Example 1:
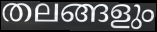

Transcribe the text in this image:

തലങ്ങളും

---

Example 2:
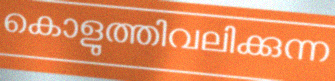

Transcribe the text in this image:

കൊളുത്തിവലിക്കുന്ന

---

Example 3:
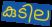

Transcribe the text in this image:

കുടില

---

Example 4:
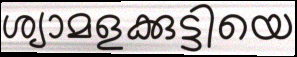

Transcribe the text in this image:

ശ്യാമളക്കുട്ടിയെ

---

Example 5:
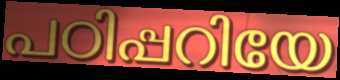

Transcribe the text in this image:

പഠിപ്പറിയേ